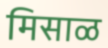
मिसाळ